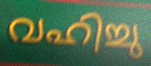
വഹിച്ചു